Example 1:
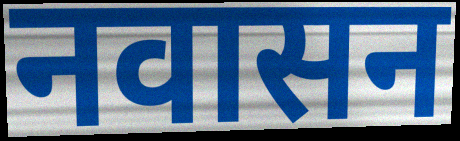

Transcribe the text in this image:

नवासन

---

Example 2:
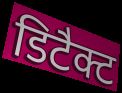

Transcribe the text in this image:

डिटैक्ट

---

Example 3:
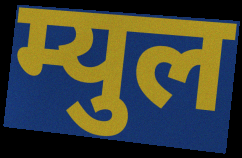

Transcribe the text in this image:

म्युल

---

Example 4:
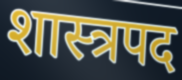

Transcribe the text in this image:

शास्त्रपद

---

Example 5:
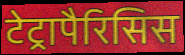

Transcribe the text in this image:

टेट्रापैरिसिस